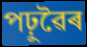
পঢ়ুৱৈৰ